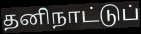
தனிநாட்டுப்